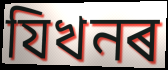
যিখনৰ